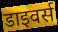
डाइवर्स